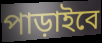
পাড়াইবে